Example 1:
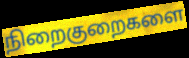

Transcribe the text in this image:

நிறைகுறைகளை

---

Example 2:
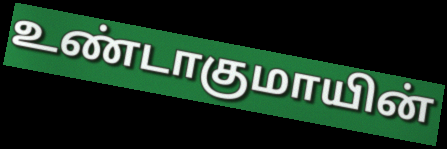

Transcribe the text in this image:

உண்டாகுமாயின்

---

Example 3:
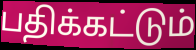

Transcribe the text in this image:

பதிக்கட்டும்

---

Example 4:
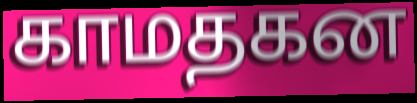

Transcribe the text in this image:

காமதகன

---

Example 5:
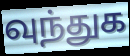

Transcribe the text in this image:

வுந்துக